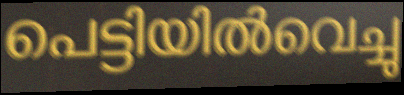
പെട്ടിയിൽവെച്ചു